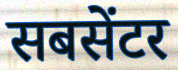
सबसेंटर